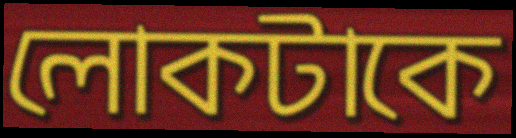
লোকটাকে